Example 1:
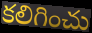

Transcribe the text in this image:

కలిగించు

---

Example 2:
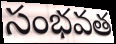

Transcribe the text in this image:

సంభవత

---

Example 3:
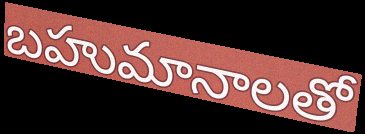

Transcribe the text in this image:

బహుమానాలతో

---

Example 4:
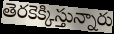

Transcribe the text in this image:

తెరకెక్కిస్తున్నారు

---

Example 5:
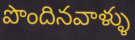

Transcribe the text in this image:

పొందినవాళ్ళు